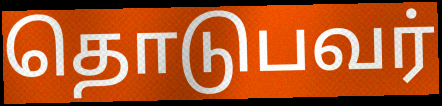
தொடுபவர்